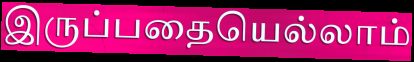
இருப்பதையெல்லாம்